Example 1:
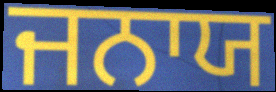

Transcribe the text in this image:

ਜਨਾਯ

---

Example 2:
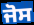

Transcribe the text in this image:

ਜੋਸ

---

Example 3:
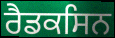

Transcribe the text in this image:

ਰੈਡਕਸਿਨ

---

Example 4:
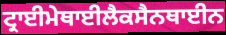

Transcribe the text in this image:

ਟ੍ਰਾਈਮੇਥਾਈਲੈਕਸੈਨਥਾਈਨ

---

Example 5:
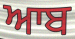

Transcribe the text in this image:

ਆਬ